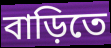
বাড়িতে